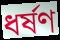
ধর্ষণ